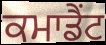
ਕਮਾਡੈਂਟ